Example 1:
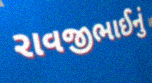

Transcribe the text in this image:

રાવજીભાઈનું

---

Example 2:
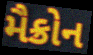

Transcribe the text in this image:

મૈક્રોન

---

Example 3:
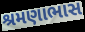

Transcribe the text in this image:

શ્રમણાભાસ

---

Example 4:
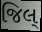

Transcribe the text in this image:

જિલ્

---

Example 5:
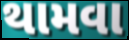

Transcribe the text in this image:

થામવા